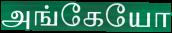
அங்கேயோ